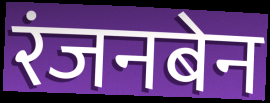
रंजनबेन